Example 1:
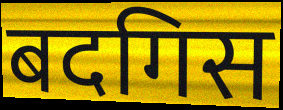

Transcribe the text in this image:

बदगिस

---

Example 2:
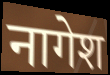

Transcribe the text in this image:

नागेश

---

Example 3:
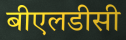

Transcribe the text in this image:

बीएलडीसी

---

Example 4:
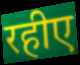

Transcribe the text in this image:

रहीए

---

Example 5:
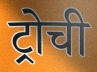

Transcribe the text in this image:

ट्रोची